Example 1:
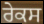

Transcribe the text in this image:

ਰੇਕਸ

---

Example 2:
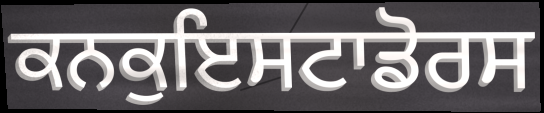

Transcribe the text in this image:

ਕਨਕੁਇਸਟਾਡੋਰਸ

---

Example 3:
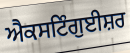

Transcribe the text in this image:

ਐਕਸਟਿੰਗੁਈਸ਼ਰ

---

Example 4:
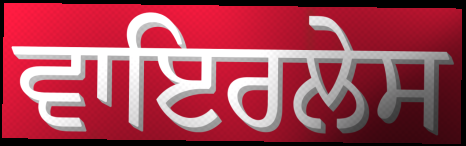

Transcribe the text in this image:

ਵਾਇਰਲੇਸ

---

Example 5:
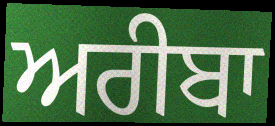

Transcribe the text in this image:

ਅਰੀਬਾ